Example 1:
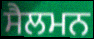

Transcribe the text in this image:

ਸੈਲਮਨ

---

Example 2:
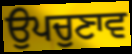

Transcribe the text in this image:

ਉਪਚੁਣਾਵ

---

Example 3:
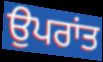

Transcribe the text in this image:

ਉਪਰਾਂਤ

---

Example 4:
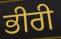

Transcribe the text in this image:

ਭੀਰੀ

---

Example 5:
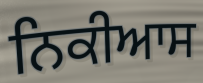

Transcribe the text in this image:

ਨਿਕੀਆਸ